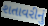
શતાવરીનું